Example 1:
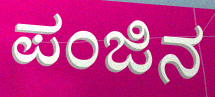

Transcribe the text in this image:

ಪಂಜಿನ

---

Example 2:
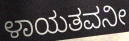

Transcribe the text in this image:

ಳಾಯತವನೀ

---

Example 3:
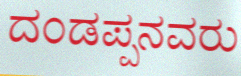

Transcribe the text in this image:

ದಂಡಪ್ಪನವರು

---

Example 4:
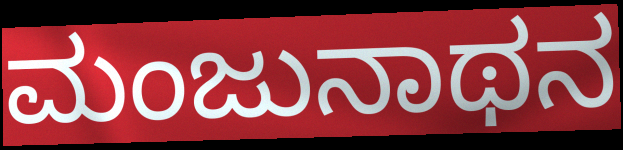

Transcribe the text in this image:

ಮಂಜುನಾಥನ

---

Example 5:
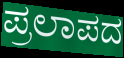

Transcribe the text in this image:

ಪ್ರಲಾಪದ